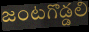
జంటగొడ్డలి